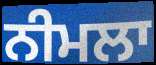
ਨੀਮਲਾ